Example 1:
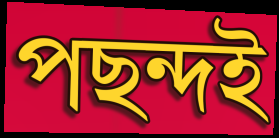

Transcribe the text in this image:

পছন্দই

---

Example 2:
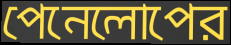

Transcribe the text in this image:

পেনেলোপের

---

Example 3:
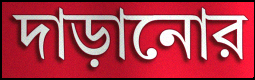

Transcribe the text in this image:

দাড়ানোর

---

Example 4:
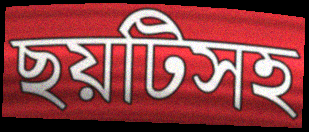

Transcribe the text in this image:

ছয়টিসহ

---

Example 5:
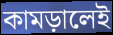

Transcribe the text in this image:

কামড়ালেই